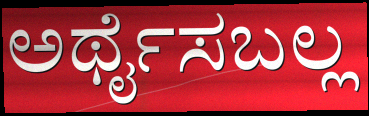
ಅರ್ಥೈಸಬಲ್ಲ